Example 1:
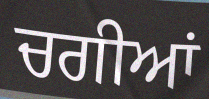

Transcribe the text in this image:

ਚਗੀਆਂ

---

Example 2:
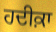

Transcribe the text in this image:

ਹਦੀਕ਼ਾ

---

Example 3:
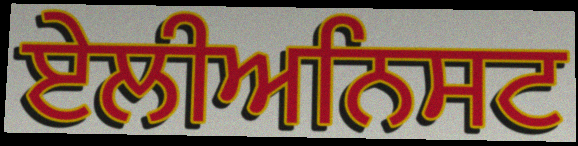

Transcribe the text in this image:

ਏਲੀਅਨਿਸਟ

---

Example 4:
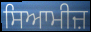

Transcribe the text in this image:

ਸਿਆਮੀਜ਼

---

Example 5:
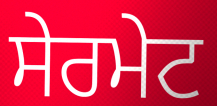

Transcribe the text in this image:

ਸੇਰਮੇਟ